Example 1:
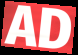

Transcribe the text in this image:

AD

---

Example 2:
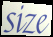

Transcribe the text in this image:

size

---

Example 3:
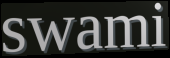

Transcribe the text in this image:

swami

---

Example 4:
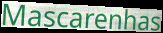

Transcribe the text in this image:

Mascarenhas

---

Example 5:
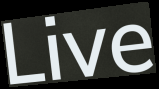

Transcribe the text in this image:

Live